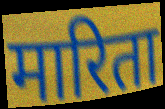
मारिता